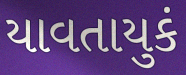
યાવતાયુકં